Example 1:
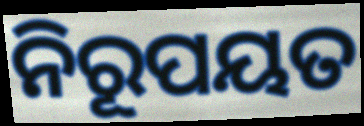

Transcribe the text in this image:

ନିରୂପୟତ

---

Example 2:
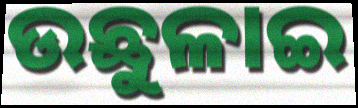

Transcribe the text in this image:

ଉଛୁଳାଇ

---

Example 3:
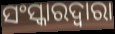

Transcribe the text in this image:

ସଂସ୍କାରଦ୍ୱାରା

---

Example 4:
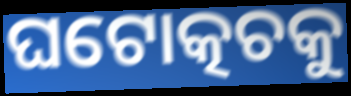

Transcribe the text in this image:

ଘଟୋତ୍କଚକୁ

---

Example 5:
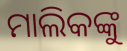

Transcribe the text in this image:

ମାଲିକଙ୍କୁ